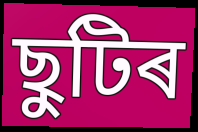
ছুটিৰ